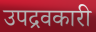
उपद्रवकारी